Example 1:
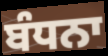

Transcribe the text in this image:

ਬੰਧਨਾ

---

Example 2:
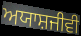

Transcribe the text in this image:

ਅਯਾਸ਼ਜੀਵੀ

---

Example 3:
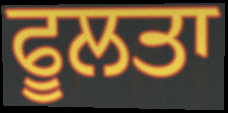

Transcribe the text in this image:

ਫੂਲਤਾ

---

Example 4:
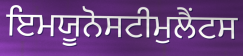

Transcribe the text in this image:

ਇਮਯੂਨੋਸਟੀਮੁਲੈਂਟਸ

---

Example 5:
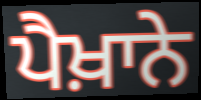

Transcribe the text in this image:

ਪੈਖ਼ਾਨੇ